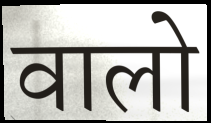
वालो